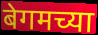
बेगमच्या